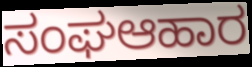
ಸಂಘಆಹಾರ